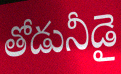
తోడునీడై